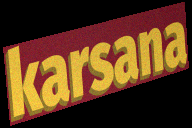
karsana